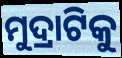
ମୁଦ୍ରାଟିକୁ